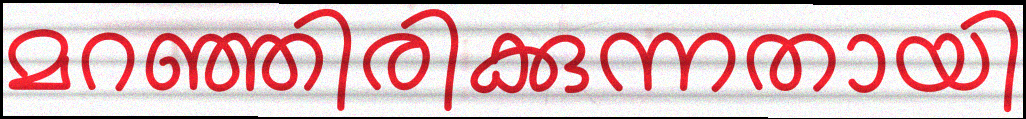
മറഞ്ഞിരിക്കുന്നതായി